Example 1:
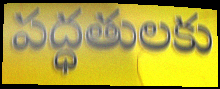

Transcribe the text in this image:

పద్ధతులకు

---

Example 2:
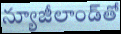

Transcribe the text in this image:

న్యూజీలాండ్‌తో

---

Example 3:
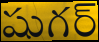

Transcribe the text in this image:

షుగర్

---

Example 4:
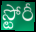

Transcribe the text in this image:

స్టోరీ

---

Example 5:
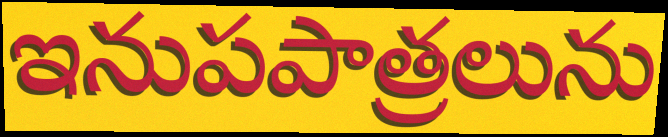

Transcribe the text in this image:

ఇనుపపాత్రలును